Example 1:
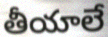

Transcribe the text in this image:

తీయాలే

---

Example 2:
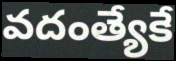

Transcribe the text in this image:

వదంత్యేకే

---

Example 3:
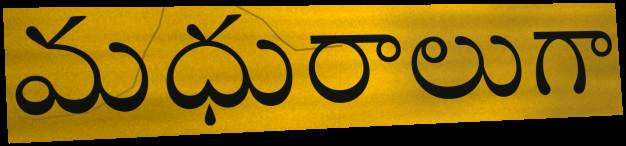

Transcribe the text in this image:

మధురాలుగా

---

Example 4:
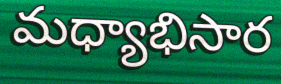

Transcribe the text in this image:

మధ్యాభిసార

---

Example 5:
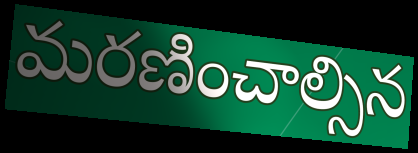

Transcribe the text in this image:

మరణించాల్సిన